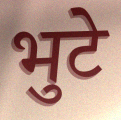
भुटे